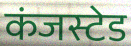
कंजस्टेड